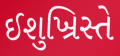
ઈશુખ્રિસ્તે